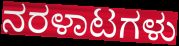
ನರಳಾಟಗಳು